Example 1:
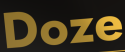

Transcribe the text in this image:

Doze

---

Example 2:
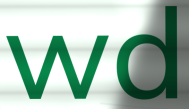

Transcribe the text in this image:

wd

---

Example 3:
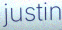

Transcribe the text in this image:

justin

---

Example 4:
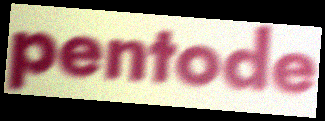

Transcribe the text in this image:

pentode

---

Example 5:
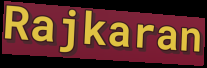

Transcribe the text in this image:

Rajkaran